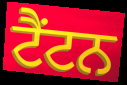
ਟੈਂਟਨ